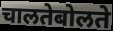
चालतेबोलते